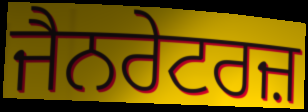
ਜੈਨਰੇਟਰਜ਼